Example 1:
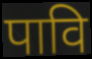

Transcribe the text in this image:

पावि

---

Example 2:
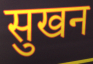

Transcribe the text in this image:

सुखन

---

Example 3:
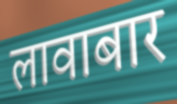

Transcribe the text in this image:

लावाबार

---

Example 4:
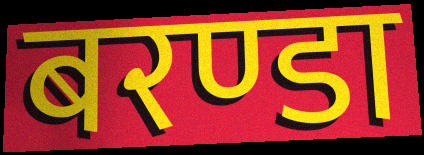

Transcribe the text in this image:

बरण्डा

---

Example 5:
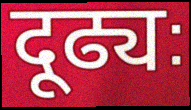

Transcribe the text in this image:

दूढ्यः